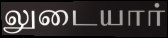
லுடையார்